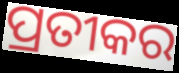
ପ୍ରତୀକର